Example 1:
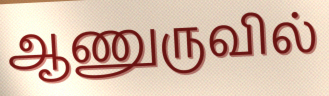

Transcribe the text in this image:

ஆணுருவில்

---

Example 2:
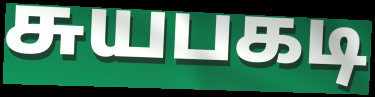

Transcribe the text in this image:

சுயபகடி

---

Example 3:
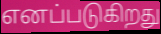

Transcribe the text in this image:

எனப்படுகிறது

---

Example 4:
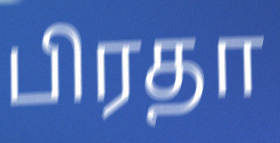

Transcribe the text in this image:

பிரதா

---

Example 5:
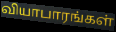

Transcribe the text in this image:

வியாபாரங்கள்